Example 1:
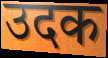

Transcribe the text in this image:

उदक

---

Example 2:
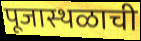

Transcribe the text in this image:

पूजास्थळाची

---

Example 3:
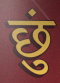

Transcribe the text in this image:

छुं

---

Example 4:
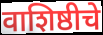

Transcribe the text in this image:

वाशिष्ठीचे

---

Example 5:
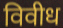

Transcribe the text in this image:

विवीध